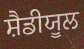
ਸ਼ੈਡੀਯੂਲ